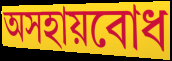
অসহায়বোধ